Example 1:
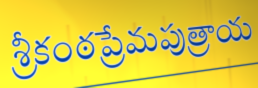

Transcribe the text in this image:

శ్రీకంఠప్రేమపుత్రాయ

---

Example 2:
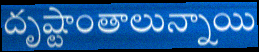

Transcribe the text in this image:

దృష్టాంతాలున్నాయి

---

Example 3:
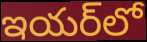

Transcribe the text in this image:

ఇయర్‌లో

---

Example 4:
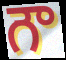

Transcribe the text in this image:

గౌ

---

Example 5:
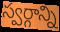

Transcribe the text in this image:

స్వర్గాన్ని